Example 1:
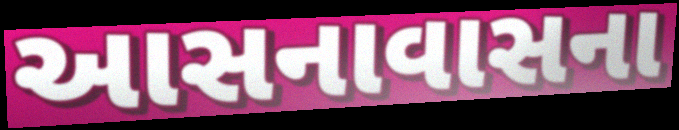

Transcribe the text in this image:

આસનાવાસના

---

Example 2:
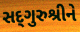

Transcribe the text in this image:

સદ્‌ગુરુશ્રીને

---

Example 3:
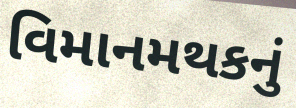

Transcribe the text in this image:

વિમાનમથકનું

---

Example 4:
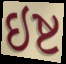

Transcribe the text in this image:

ઇષ્ટ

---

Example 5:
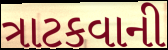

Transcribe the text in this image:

ત્રાટકવાની